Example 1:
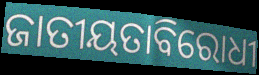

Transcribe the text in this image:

ଜାତୀୟତାବିରୋଧୀ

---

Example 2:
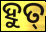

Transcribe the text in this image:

ହୁତ୍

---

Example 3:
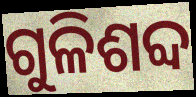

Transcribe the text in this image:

ଗୁଳିଶବ୍ଦ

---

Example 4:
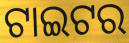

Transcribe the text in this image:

ଟାଇଟର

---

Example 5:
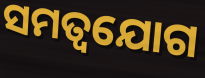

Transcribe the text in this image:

ସମତ୍ୱଯୋଗ